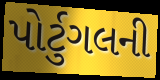
પોર્ટુગલની